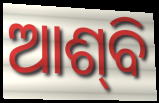
ଆଶ୍‍ବି